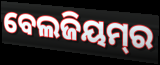
ବେଲଜିୟମ୍‌ର